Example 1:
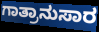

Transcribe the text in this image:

ಗಾತ್ರಾನುಸಾರ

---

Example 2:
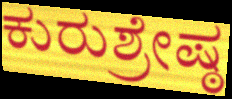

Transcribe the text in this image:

ಕುರುಶ್ರೇಷ್ಠ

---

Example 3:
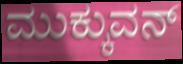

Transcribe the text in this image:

ಮುಕ್ಕುವನ್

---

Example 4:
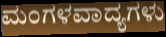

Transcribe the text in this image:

ಮಂಗಳವಾದ್ಯಗಳು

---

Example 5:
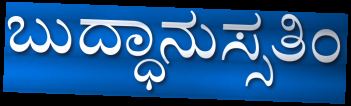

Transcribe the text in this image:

ಬುದ್ಧಾನುಸ್ಸತಿಂ